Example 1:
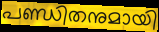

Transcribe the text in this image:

പണ്ഡിതനുമായി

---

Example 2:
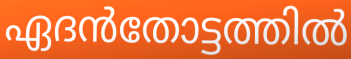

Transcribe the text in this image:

ഏദൻതോട്ടത്തിൽ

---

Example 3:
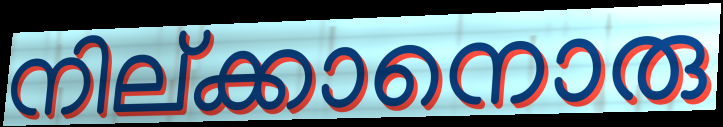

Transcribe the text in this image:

നില്ക്കാനൊരു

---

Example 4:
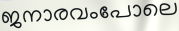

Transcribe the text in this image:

ജനാരവംപോലെ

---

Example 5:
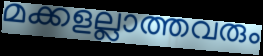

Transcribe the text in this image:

മക്കളല്ലാത്തവരും